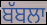
ਬੱਬਲਾ